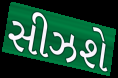
સીઝશે